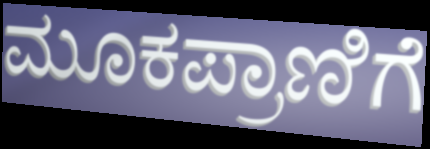
ಮೂಕಪ್ರಾಣಿಗೆ